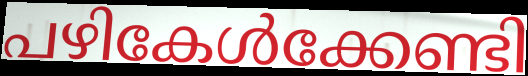
പഴികേൾക്കേണ്ടി